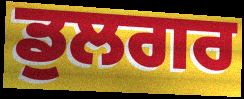
ਡੁਲਗਰ